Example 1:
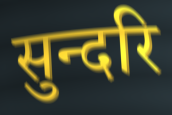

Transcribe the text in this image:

सुन्दरि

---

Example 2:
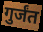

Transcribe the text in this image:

गुर्जंत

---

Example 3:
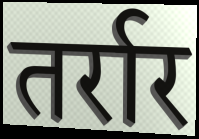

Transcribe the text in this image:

तर्रार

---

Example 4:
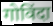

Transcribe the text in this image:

गोविंदा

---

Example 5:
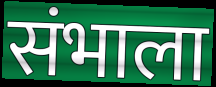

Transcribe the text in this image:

संभाला